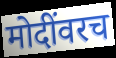
मोदींवरच